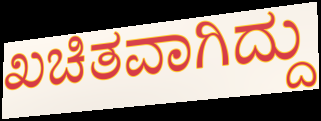
ಖಚಿತವಾಗಿದ್ದು